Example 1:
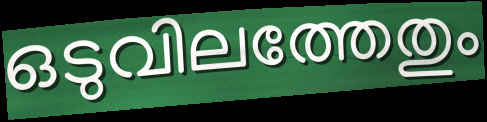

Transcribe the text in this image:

ഒടുവിലത്തേതും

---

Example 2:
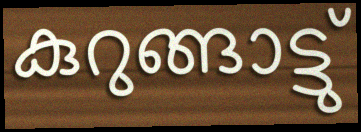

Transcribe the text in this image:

കുറുങ്ങാട്ടു്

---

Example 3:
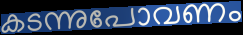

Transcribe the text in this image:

കടന്നുപോവണം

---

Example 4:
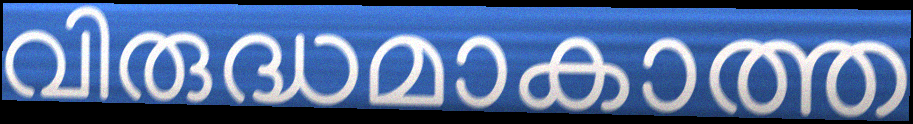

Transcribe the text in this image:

വിരുദ്ധമാകാത്ത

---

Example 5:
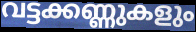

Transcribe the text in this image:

വട്ടക്കണ്ണുകളും